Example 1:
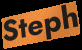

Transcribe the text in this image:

Steph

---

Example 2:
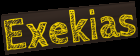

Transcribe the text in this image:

Exekias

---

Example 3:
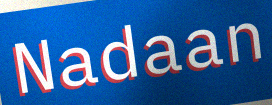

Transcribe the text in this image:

Nadaan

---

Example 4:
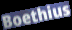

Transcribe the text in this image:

Boethius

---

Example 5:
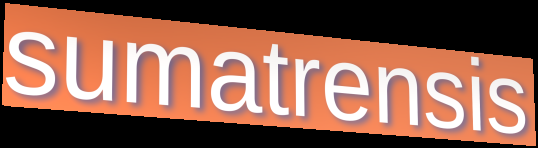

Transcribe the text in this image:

sumatrensis